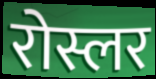
रोस्लर